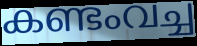
കണ്ടംവച്ച